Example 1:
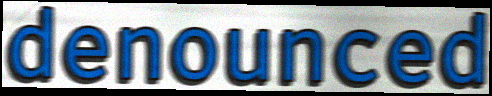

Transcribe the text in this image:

denounced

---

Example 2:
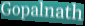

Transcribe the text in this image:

Gopalnath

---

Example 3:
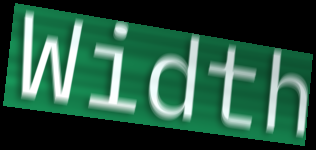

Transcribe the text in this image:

Width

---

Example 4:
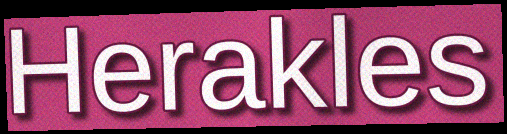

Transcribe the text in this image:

Herakles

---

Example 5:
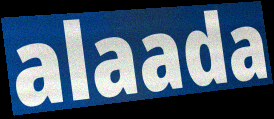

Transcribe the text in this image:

alaada